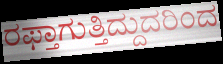
ರಫ್ತಾಗುತ್ತಿದ್ದುದರಿಂದ